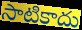
సాటికాదు